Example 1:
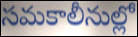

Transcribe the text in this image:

సమకాలీనుల్లో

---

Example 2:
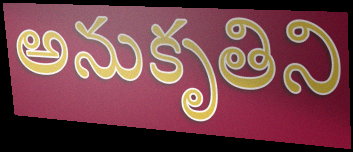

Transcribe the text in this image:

అనుకృతిని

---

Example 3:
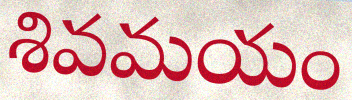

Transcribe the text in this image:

శివమయం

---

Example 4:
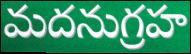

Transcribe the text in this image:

మదనుగ్రహ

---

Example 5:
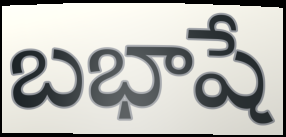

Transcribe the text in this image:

బభాషే